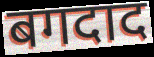
बगदाद